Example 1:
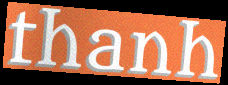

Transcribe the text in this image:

thanh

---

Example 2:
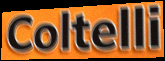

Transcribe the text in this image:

Coltelli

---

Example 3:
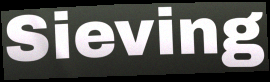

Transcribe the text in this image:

Sieving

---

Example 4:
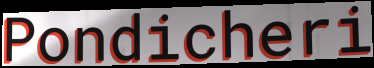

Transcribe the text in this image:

Pondicheri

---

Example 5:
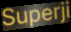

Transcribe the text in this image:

Superji